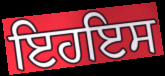
ਇਹਇਸ